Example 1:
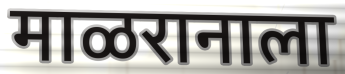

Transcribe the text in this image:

माळरानाला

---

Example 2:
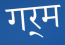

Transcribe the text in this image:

गर्म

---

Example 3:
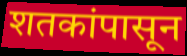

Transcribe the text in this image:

शतकांपासून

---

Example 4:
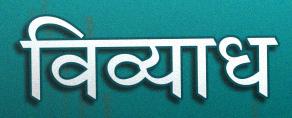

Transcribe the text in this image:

विव्याध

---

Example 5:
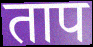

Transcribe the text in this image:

ताप